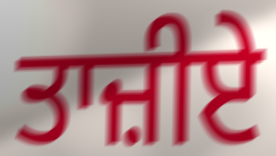
ਤਾਜ਼ੀਏ